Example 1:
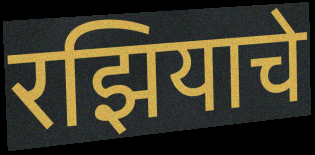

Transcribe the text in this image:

रझियाचे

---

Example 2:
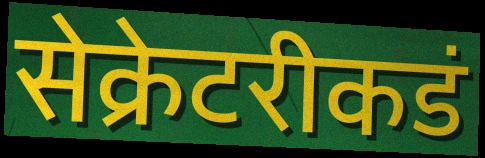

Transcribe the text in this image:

सेक्रेटरीकडं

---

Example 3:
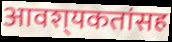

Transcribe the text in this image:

आवश्यकतांसह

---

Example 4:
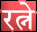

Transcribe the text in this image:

रत्ने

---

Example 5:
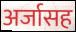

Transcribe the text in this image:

अर्जासह